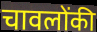
चावलोंकी